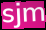
sjm